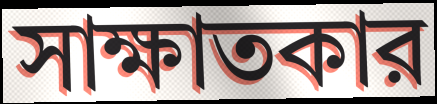
সাক্ষাতকার